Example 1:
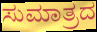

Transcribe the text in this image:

ಸುಮಾತ್ರದ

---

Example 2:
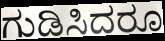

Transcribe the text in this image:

ಗುಡಿಸಿದರೂ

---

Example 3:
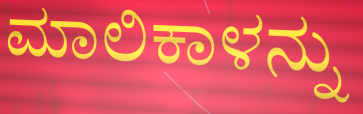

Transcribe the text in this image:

ಮಾಲಿಕಾಳನ್ನು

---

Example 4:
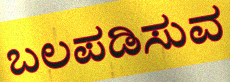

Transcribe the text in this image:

ಬಲಪಡಿಸುವ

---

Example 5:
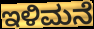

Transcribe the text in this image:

ಇಳಿಮನೆ